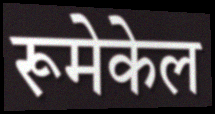
रूमेकेल